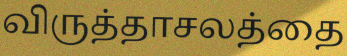
விருத்தாசலத்தை